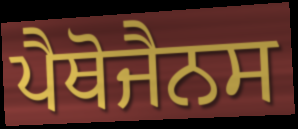
ਪੈਥੋਜੈਨਸ